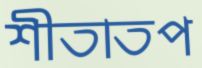
শীতাতপ